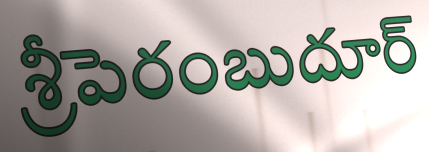
శ్రీపెరంబుదూర్